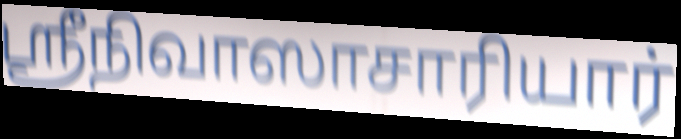
ஸ்ரீநிவாஸாசாரியார்